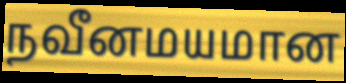
நவீனமயமான